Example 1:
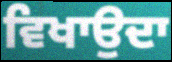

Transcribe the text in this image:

ਵਿਖਾਉਦਾ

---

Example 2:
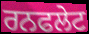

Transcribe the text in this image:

ਰਨਫਲੇਟ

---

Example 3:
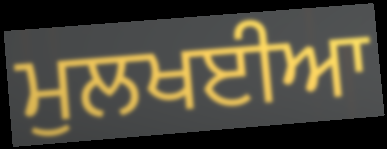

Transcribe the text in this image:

ਮੁਲਖਈਆ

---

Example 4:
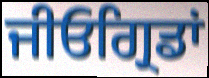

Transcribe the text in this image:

ਜੀਓਗ੍ਰਿਡਾਂ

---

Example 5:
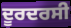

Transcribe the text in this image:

ਦੂਰਦਰਸੀ